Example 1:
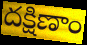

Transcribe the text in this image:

దక్షిణాం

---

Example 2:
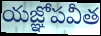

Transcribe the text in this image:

యజ్ఞోపవీత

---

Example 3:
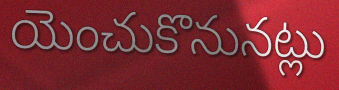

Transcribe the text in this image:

యెంచుకొనునట్లు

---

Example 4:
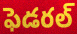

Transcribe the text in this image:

ఫెడరల్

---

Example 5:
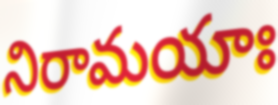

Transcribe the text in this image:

నిరామయాః